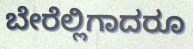
ಬೇರೆಲ್ಲಿಗಾದರೂ